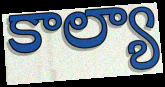
కాల్యా